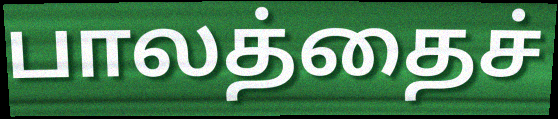
பாலத்தைச்